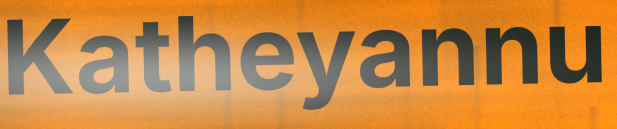
Katheyannu